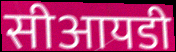
सीआयडी